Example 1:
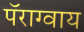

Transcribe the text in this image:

पॅराग्वाय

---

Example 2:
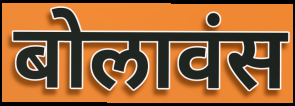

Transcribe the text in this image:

बोलावंस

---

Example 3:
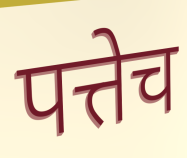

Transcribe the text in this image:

पत्तेच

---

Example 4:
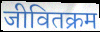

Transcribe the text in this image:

जीवितक्रम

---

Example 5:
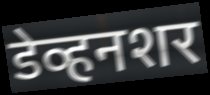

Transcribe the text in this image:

डेव्हनशर